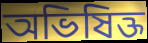
অভিষিক্ত